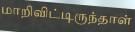
மாறிவிட்டிருந்தாள்